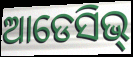
ଆଡେସିଭ୍